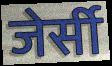
जेर्सी